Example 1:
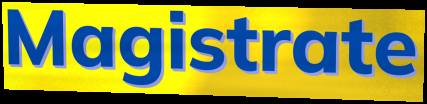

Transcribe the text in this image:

Magistrate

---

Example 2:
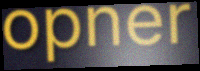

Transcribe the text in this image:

opner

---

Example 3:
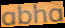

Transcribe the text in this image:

abha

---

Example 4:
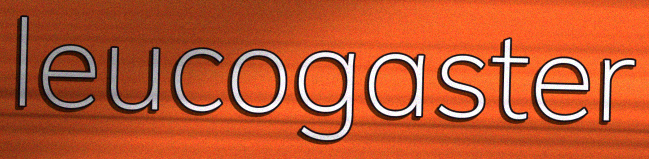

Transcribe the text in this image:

leucogaster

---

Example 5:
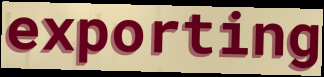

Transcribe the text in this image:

exporting